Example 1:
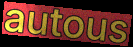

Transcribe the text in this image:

autous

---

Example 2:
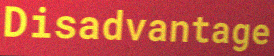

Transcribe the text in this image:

Disadvantage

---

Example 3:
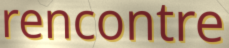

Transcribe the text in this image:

rencontre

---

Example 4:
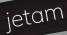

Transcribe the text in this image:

jetam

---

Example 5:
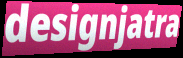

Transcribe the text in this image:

designjatra